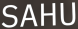
SAHU